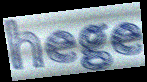
hege